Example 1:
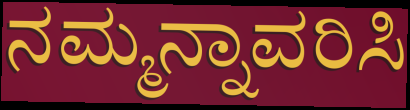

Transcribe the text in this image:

ನಮ್ಮನ್ನಾವರಿಸಿ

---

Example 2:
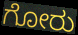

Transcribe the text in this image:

ಗೋರು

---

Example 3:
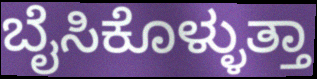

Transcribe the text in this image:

ಬೈಸಿಕೊಳ್ಳುತ್ತಾ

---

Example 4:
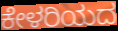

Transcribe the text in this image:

ಕೇಳರಿಯದ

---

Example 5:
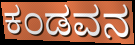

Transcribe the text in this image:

ಕಂಡವನ